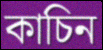
কাচিন